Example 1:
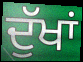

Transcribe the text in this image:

ਦੁੱਖਾਂ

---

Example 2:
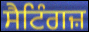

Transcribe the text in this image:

ਸੈਟਿੰਗਜ਼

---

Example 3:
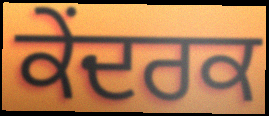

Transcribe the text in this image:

ਕੇਂਦਰਕ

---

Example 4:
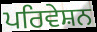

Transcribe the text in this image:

ਪਰਿਵੇਸ਼ਨ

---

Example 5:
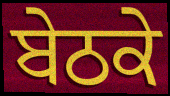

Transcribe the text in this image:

ਬੇਠਕੇ